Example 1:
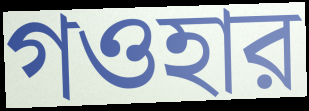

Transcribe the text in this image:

গওহার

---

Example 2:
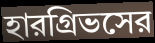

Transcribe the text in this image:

হারগ্রিভসের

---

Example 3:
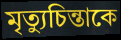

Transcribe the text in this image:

মৃত্যুচিন্তাকে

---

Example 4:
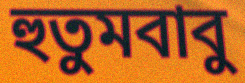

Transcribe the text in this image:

হুতুমবাবু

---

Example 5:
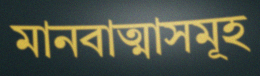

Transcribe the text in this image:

মানবাত্মাসমূহ